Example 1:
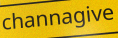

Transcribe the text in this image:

channagive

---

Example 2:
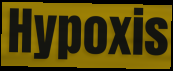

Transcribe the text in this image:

Hypoxis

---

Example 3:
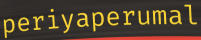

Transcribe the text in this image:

periyaperumal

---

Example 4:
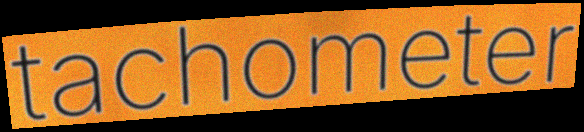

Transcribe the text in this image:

tachometer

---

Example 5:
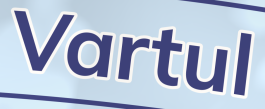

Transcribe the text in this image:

Vartul